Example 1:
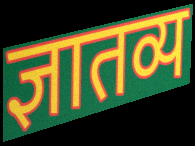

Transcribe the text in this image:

ज्ञातव्य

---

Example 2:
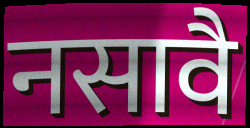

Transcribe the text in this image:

नसावै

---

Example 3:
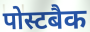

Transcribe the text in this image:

पोस्टबैक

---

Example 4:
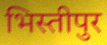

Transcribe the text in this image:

भिस्तीपुर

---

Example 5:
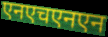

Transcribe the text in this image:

एनएचएनएन